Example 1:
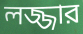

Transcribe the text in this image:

লজ্জার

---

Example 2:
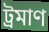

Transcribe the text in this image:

ট্রমাণ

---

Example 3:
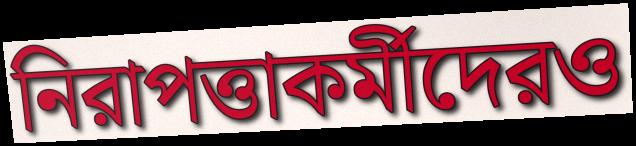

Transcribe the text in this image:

নিরাপত্তাকর্মীদেরও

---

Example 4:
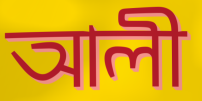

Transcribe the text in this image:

আলী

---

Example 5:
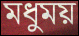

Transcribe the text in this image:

মধুময়